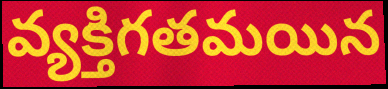
వ్యక్తిగతమయిన